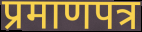
प्रमाणपत्र